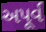
અપૂર્વ